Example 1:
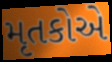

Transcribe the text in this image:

મૃતકોએ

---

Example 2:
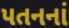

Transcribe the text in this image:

પતનનાં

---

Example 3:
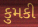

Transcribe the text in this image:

કુમકી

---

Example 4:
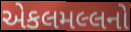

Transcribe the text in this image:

એકલમલ્લનો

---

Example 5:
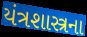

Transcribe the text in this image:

યંત્રશાસ્ત્રના